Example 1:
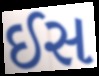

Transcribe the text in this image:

ઈસ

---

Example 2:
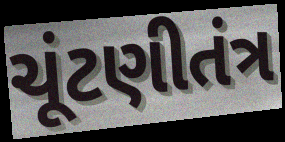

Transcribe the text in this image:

ચૂંટણીતંત્ર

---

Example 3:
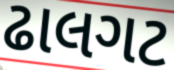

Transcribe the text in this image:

ઢાલગટ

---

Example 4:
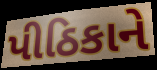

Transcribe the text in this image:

પીઠિકાને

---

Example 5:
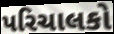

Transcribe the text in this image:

પરિચાલકો